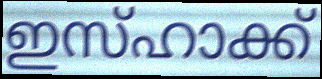
ഇസ്ഹാക്ക്